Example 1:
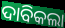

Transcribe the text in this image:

ଦାବିକଲା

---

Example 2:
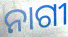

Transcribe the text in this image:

ନାଗୀ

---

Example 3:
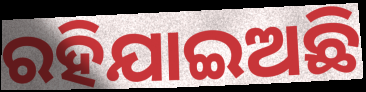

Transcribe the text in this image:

ରହିଯାଇଅଛି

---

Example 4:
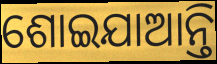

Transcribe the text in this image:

ଶୋଇଯାଆନ୍ତି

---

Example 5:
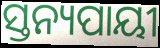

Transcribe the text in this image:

ସ୍ତନ୍ୟପାୟୀ